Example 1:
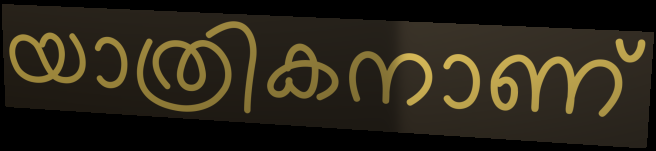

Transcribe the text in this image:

യാത്രികനാണ്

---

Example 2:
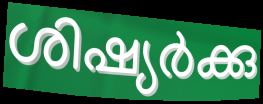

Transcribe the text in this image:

ശിഷ്യർക്കു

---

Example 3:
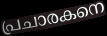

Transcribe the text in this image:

പ്രചാരകനെ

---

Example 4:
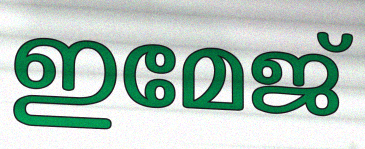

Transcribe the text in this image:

ഇമേജ്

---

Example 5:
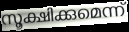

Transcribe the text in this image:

സൂക്ഷിക്കുമെന്ന്